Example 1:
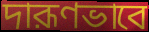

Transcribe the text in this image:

দারূণভাবে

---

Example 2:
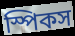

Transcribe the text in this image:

স্পিকস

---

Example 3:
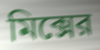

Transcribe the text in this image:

মিক্সের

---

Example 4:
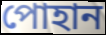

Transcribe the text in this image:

পোহান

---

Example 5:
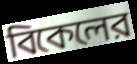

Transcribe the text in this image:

বিকেলের